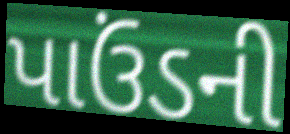
પાઉંડની